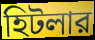
হিটলার